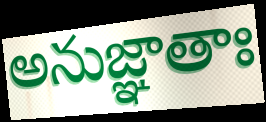
అనుజ్ఞాతాః